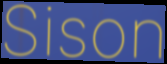
Sison